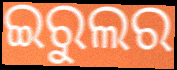
ଇରୁଲର